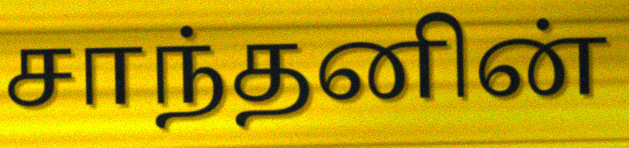
சாந்தனின்